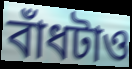
বাঁধটাও